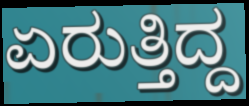
ಏರುತ್ತಿದ್ದ